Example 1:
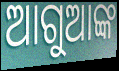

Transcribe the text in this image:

ଆଗୁଆଙ୍କ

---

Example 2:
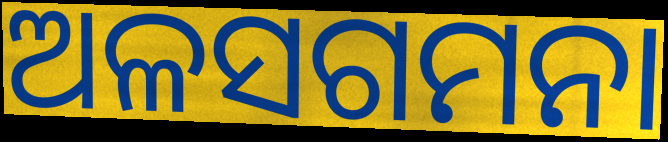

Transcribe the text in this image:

ଅଳସଗମନା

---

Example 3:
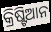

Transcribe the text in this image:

କ୍ରିଷ୍ଟିଆନ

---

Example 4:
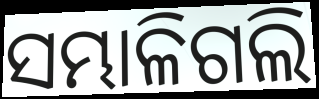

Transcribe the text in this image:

ସମ୍ଭାଳିଗଲି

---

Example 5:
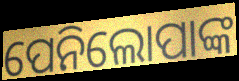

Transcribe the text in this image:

ପେନିଲୋପାଙ୍କ